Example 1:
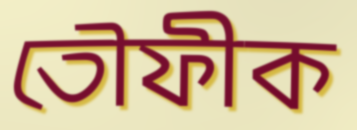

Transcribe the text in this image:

তৌফীক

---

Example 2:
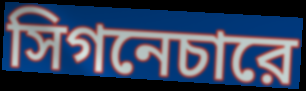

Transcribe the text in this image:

সিগনেচারে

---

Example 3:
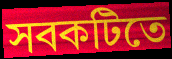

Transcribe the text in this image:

সবকটিতে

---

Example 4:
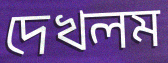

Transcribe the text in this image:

দেখলম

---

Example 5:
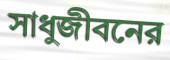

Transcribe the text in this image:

সাধুজীবনের